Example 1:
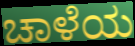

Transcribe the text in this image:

ಚಾಳೆಯ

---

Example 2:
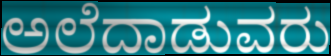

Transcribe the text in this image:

ಅಲೆದಾಡುವರು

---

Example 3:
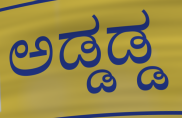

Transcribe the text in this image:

ಅಡ್ಡಡ್ಡ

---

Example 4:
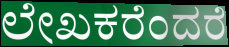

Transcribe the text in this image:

ಲೇಖಕರೆಂದರೆ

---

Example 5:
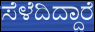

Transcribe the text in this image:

ಸೆಳೆದಿದ್ದಾರೆ